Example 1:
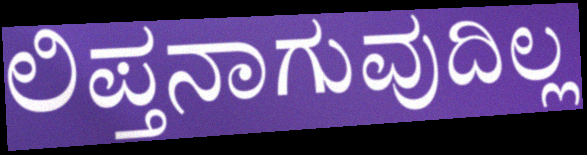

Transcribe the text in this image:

ಲಿಪ್ತನಾಗುವುದಿಲ್ಲ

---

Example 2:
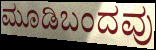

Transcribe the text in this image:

ಮೂಡಿಬಂದವು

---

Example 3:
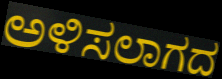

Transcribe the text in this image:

ಅಳಿಸಲಾಗದ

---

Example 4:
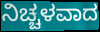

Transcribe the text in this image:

ನಿಚ್ಚಳವಾದ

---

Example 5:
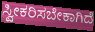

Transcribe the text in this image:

ಸ್ವೀಕರಿಸಬೇಕಾಗಿದೆ